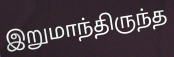
இறுமாந்திருந்த